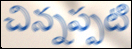
చిన్నప్పటి